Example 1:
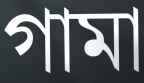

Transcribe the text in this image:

গামা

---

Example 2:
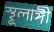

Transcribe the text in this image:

স্থূলাঙ্গী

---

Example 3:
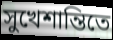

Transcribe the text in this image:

সুখেশান্তিতে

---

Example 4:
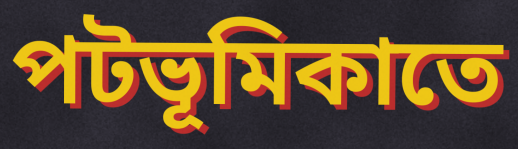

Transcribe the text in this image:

পটভূমিকাতে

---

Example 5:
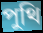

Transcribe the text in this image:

পুথি